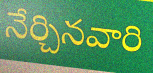
నేర్చినవారి